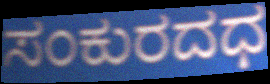
ಸಂಕುರದಧ